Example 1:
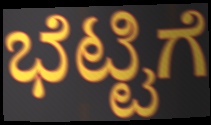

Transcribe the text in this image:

ಭೆಟ್ಟಿಗೆ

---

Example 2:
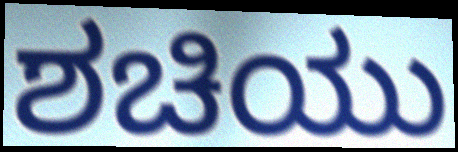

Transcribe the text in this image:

ಶಚಿಯು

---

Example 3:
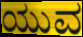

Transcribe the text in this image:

ಯುವ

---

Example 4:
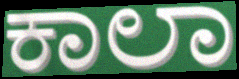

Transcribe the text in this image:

ಕಾಲಾ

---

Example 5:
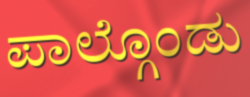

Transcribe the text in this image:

ಪಾಲ್ಗೊಂಡು